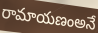
రామాయణంఅనే